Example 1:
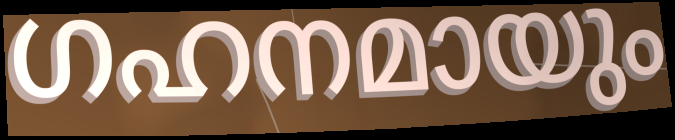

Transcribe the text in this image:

ഗഹനമായും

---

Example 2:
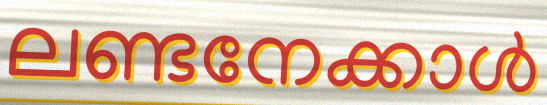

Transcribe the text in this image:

ലണ്ടനേക്കാൾ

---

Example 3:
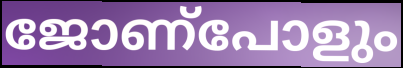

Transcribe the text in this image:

ജോണ്പോളും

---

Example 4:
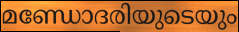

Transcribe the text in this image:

മണ്ഡോദരിയുടെയും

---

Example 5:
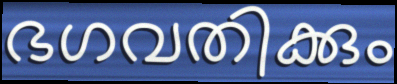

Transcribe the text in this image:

ഭഗവതിക്കും